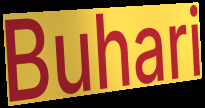
Buhari